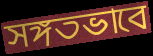
সঙ্গতভাবে